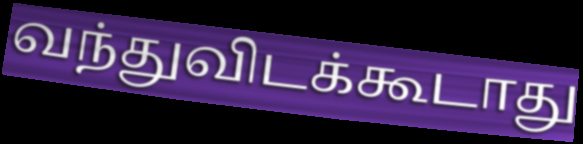
வந்துவிடக்கூடாது